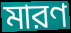
মারণ